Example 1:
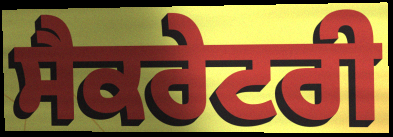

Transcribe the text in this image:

ਸੈਕਰੇਟਰੀ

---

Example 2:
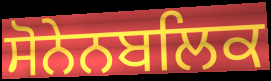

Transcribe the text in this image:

ਸੋਨੇਨਬਲਿਕ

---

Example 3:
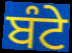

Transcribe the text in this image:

ਬੰਟੇ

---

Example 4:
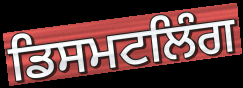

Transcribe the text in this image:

ਡਿਸਮਟਲਿੰਗ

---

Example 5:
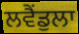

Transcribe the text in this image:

ਲਵੈਂਡੁਲਾ